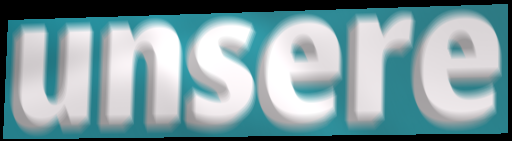
unsere